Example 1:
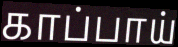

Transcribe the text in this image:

காப்பாய்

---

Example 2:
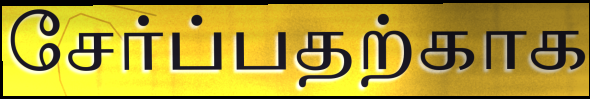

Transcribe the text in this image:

சேர்ப்பதற்காக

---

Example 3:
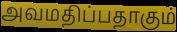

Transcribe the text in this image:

அவமதிப்பதாகும்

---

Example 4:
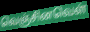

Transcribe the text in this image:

வெஞ்சினவெள்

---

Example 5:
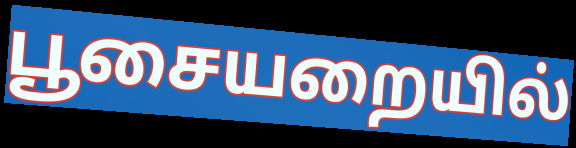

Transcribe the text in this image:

பூசையறையில்